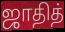
ஜாதித்